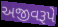
અજીવરૂપે